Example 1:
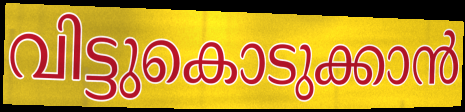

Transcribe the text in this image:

വിട്ടുകൊടുക്കാൻ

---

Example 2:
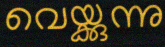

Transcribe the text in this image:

വെയ്ക്കുന്നു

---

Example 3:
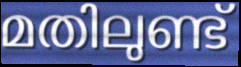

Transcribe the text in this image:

മതിലുണ്ട്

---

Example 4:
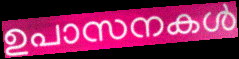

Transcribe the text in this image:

ഉപാസനകൾ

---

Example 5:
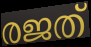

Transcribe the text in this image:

രജത്